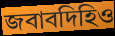
জবাবদিহিও